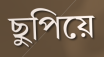
ছুপিয়ে